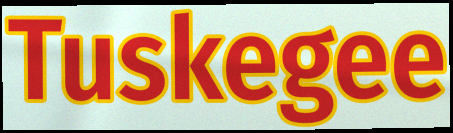
Tuskegee